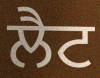
ਲੈਟ